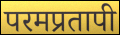
परमप्रतापी